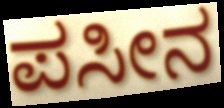
ಪಸೀನ